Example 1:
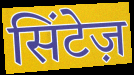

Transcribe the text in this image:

सिंटेज़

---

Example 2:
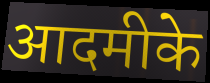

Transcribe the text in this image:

आदमीके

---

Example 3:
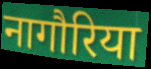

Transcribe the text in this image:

नागौरिया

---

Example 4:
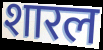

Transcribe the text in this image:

शारल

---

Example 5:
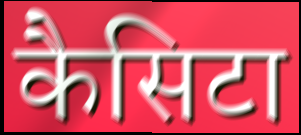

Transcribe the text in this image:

कैसिटा